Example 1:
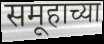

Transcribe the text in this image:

समूहाच्या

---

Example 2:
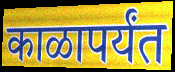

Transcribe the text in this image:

काळापर्यंत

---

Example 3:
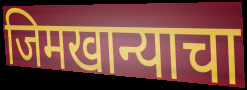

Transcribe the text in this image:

जिमखान्याचा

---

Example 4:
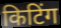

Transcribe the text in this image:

किटिंग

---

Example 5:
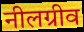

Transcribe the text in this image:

नीलग्रीव